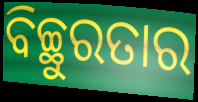
ବିଚ୍ଛୁରତାର